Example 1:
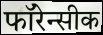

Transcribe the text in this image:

फॉरेन्सीक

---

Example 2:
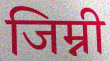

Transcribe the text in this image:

जिम्नी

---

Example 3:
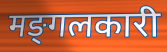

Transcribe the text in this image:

मङ्गलकारी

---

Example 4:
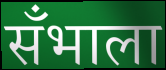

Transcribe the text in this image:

सँभाला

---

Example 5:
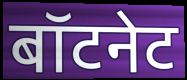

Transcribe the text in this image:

बॉटनेट